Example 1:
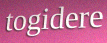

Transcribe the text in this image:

togidere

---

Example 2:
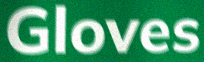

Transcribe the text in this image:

Gloves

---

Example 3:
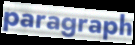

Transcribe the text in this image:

paragraph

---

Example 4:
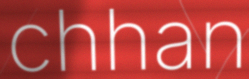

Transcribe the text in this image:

chhan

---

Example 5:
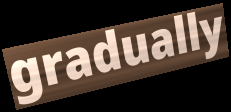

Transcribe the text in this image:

gradually